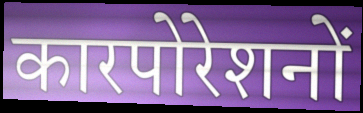
कारपोरेशनों